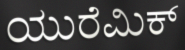
ಯುರೆಮಿಕ್